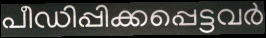
പീഡിപ്പിക്കപ്പെട്ടവർ